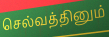
செல்வத்தினும்